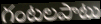
గంటలపాటు